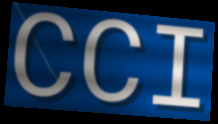
CCI